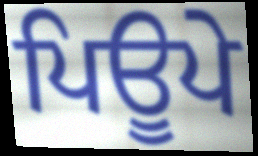
ਪਿਊਪੇ